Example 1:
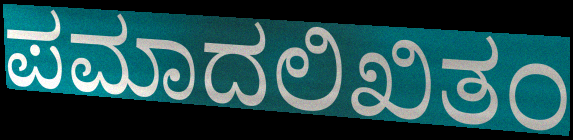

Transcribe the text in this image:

ಪಮಾದಲಿಖಿತಂ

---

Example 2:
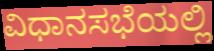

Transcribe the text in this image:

ವಿಧಾನಸಭೆಯಲ್ಲಿ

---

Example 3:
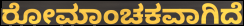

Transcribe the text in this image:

ರೋಮಾಂಚಕವಾಗಿದೆ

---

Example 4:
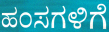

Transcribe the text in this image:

ಹಂಸಗಳಿಗೆ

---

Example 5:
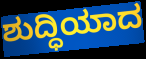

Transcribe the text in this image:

ಶುದ್ಧಿಯಾದ